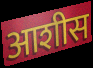
आशीस